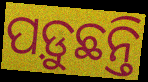
ପଡ଼ୁଛନ୍ତି